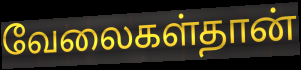
வேலைகள்தான்